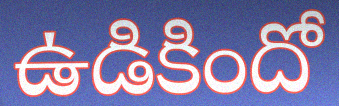
ఉడికిందో